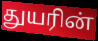
துயரின்